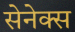
सेनेक्स